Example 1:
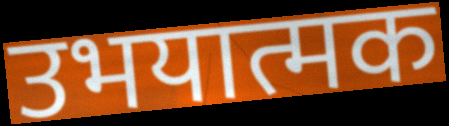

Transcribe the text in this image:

उभयात्मक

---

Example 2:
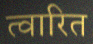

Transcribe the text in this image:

त्वारित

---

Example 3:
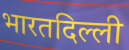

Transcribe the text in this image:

भारतदिल्ली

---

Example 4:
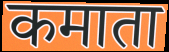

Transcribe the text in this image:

कमाता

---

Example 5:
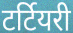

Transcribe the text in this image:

टर्टियरी